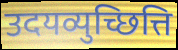
उदयव्युच्छित्ति